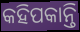
କହିପକାନ୍ତି